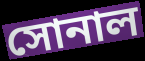
সোনাল